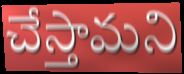
చేస్తామని